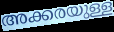
അക്കരയുള്ള